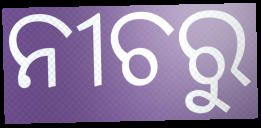
ନୀଚରୁ